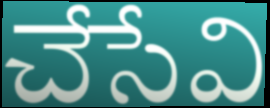
చేసేవి